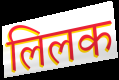
लिलक